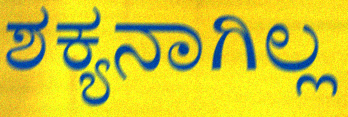
ಶಕ್ಯನಾಗಿಲ್ಲ